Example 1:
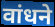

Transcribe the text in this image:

वांधने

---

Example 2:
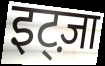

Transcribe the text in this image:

इट्ज़ा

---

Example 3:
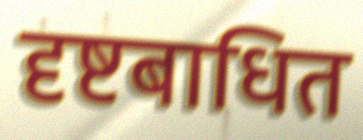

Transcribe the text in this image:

दृष्टबाधित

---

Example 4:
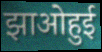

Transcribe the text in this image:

झाओहुई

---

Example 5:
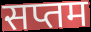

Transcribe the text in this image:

सप्तम